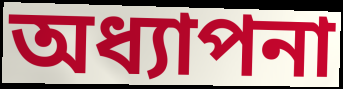
অধ্যাপনা